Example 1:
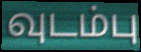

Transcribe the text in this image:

வுடம்பு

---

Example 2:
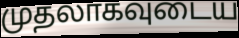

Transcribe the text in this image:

முதலாகவுடைய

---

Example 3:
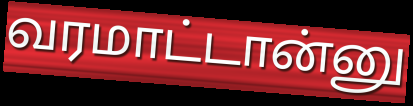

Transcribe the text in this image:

வரமாட்டான்னு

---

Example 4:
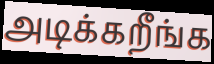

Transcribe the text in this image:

அடிக்கறீங்க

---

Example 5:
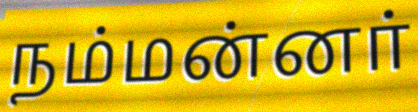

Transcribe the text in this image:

நம்மன்னர்